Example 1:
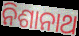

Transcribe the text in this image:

ନିଶାନାଥ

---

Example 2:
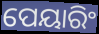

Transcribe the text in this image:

ପେୟାରିଂ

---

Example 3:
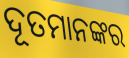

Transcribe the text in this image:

ଦୂତମାନଙ୍କର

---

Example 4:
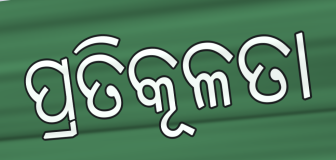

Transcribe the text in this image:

ପ୍ରତିକୂଳତା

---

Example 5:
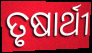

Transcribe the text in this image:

ତୃଷାର୍ଥୀ